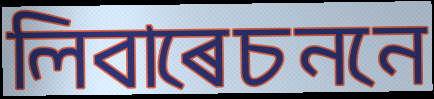
লিবাৰেচননে